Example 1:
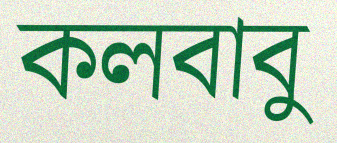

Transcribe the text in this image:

কলবাবু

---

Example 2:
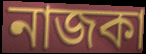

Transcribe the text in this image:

নাজকা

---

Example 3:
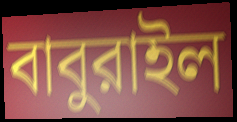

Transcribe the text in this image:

বাবুরাইল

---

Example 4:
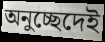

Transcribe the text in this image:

অনুচ্ছেদেই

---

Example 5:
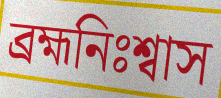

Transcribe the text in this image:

ব্রহ্মনিঃশ্বাস